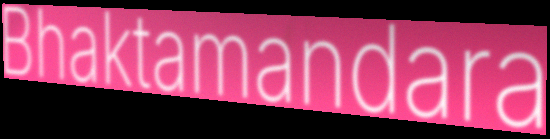
Bhaktamandara